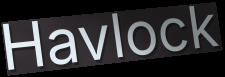
Havlock